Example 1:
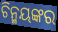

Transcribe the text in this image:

ଚିନ୍ମୟଙ୍କର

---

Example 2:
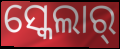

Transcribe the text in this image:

ସ୍କେଲାର୍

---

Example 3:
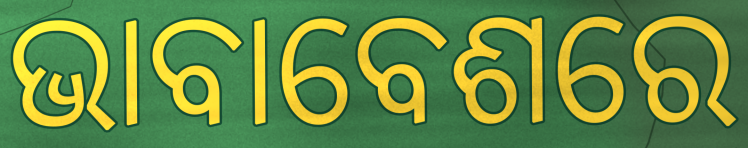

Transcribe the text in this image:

ଭାବାବେଶରେ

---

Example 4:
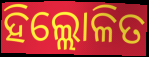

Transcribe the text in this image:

ହିଲ୍ଲୋଳିତ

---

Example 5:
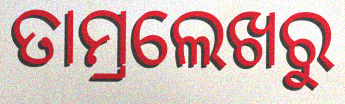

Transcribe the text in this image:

ତାମ୍ରଲେଖରୁ